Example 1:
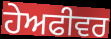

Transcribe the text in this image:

ਹੇਅਫੀਵਰ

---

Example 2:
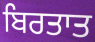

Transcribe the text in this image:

ਬਿਰਤਾਤ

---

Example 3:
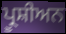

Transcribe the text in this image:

ਪ੍ਰੂਸ਼ੀਅਨ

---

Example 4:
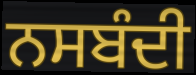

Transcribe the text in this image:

ਨਸਬੰਦੀ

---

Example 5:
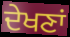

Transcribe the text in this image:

ਦੇਖਣਾਂ